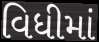
વિધીમાં